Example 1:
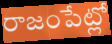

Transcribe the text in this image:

రాజంపేట్లో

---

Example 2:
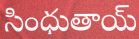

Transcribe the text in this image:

సింధుతాయ్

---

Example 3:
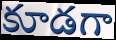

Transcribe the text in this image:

కూడగా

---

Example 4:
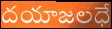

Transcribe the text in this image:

దయాజలధే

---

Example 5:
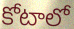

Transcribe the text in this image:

కోటాలో